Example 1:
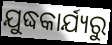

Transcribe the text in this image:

ଯୁଦ୍ଧକାର୍ଯ୍ୟରୁ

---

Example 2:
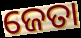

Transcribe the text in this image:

ଜେତା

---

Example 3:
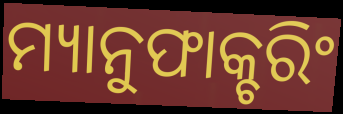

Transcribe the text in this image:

ମ୍ୟାନୁଫାକ୍ଚରିଂ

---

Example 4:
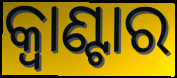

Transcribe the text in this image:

କ୍ୱାଣ୍ଟାର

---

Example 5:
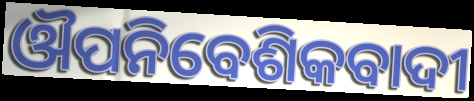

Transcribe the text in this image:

ଔପନିବେଶିକବାଦୀ